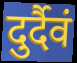
दुर्दैवं